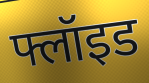
फ्लॉइड